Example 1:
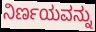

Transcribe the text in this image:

ನಿರ್ಣಯವನ್ನು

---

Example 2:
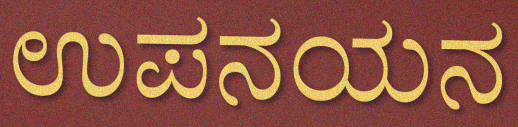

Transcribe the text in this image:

ಉಪನಯನ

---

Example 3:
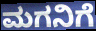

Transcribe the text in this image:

ಮಗನಿಗೆ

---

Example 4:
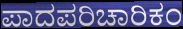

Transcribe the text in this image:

ಪಾದಪರಿಚಾರಿಕಂ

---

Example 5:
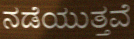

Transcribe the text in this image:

ನಡೆಯುತ್ತವೆ